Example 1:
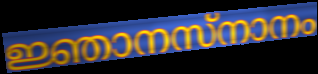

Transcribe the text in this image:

ജ്ഞാനസ്നാനം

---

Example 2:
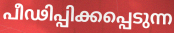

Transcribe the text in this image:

പീഢിപ്പിക്കപ്പെടുന്ന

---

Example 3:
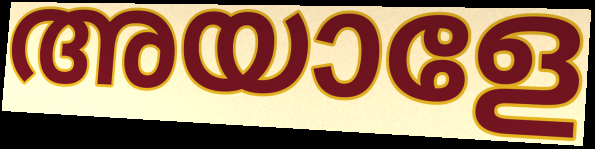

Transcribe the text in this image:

അയാളേ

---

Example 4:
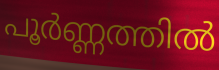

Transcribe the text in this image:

പൂർണ്ണത്തിൽ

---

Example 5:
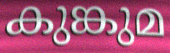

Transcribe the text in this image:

കുങ്കുമ